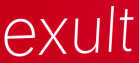
exult